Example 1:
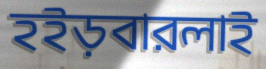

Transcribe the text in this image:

হইড়বারলাই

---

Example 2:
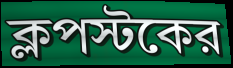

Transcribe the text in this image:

ক্লপস্টকের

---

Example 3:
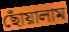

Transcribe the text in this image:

ছোঁয়ালাম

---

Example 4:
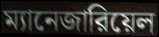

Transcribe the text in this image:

ম্যানেজারিয়েল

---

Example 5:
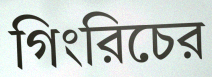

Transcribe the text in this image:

গিংরিচের